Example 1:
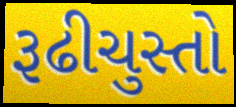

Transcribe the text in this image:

રૂઢીચુસ્તો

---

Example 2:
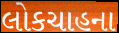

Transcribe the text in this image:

લોકચાહના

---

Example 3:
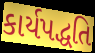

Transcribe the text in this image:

કાર્યપદ્ધતિ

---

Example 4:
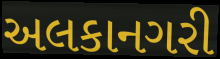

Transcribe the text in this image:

અલકાનગરી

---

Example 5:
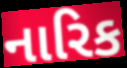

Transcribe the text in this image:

નારિક